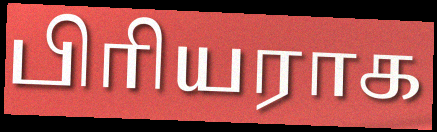
பிரியராக